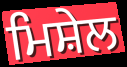
ਮਿਸ਼ੇਲ